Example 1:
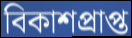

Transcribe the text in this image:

বিকাশপ্রাপ্ত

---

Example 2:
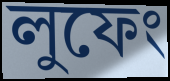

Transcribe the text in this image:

লুফেং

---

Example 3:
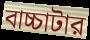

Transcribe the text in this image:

বাচ্চাটার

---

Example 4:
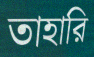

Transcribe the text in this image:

তাহারি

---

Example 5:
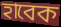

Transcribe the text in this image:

হাবেক